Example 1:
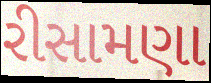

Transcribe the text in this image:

રીસામણા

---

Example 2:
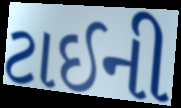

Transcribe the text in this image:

ટાઈની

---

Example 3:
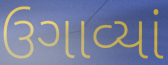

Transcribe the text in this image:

ઉગાવ્યાં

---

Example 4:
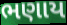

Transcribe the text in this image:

ભણાય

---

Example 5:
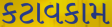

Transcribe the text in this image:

કટાવકામ